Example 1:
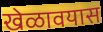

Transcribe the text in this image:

खेळावयास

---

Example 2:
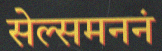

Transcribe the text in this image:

सेल्समननं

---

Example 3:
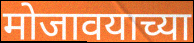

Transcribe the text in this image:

मोजावयाच्या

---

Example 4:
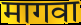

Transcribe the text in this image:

मागवा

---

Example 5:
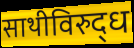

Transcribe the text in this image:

साथीविरुद्ध